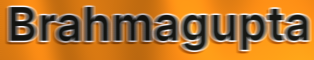
Brahmagupta